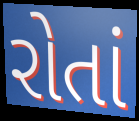
રોતાં